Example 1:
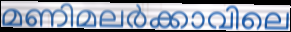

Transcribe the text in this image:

മണിമലർക്കാവിലെ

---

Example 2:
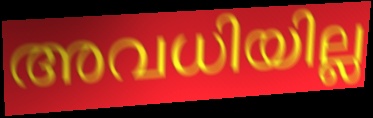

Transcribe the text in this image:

അവധിയില്ല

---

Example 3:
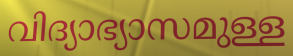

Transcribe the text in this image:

വിദ്യാഭ്യാസമുള്ള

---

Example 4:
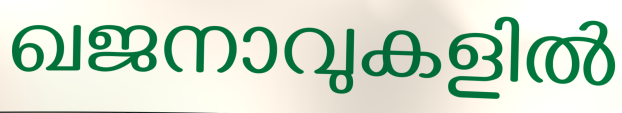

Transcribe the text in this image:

ഖജനാവുകളിൽ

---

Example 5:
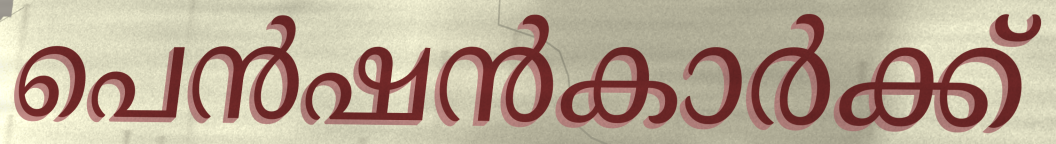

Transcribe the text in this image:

പെൻഷൻകാർക്ക്